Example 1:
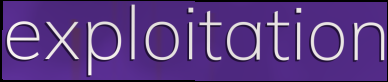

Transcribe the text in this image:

exploitation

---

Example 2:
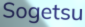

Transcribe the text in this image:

Sogetsu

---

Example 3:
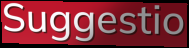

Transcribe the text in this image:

Suggestio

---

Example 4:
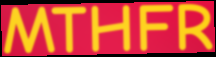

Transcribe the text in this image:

MTHFR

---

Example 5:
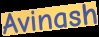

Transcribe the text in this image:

Avinash